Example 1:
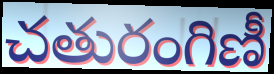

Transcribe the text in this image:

చతురంగిణీ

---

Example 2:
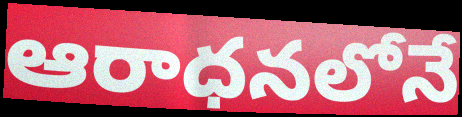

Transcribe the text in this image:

ఆరాధనలోనే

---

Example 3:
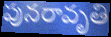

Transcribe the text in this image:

పునరావృతి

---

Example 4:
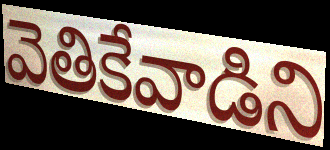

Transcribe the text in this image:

వెతికేవాడిని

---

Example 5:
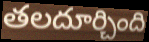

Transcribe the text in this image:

తలదూర్చింది